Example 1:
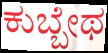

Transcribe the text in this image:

ಕುಬ್ಬೇಥ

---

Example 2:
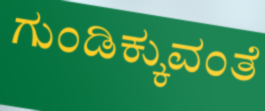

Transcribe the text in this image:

ಗುಂಡಿಕ್ಕುವಂತೆ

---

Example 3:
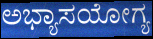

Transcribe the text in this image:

ಅಭ್ಯಾಸಯೋಗ್ಯ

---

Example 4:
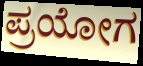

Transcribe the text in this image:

ಪ್ರಯೋಗ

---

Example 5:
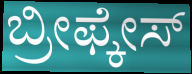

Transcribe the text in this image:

ಬ್ರೀಫ್ಕೇಸ್